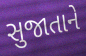
સુજાતાને